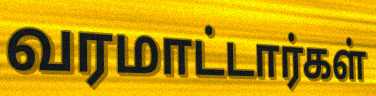
வரமாட்டார்கள்